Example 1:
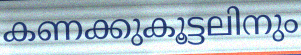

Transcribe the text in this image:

കണക്കുകൂട്ടലിനും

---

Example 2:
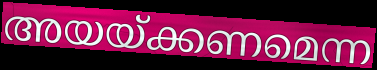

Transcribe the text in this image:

അയയ്ക്കണമെന്ന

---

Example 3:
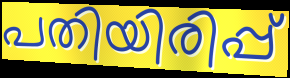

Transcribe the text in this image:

പതിയിരിപ്പ്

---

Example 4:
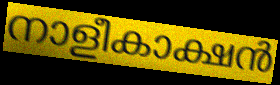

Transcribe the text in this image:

നാളീകാക്ഷൻ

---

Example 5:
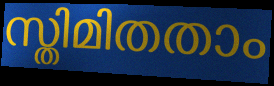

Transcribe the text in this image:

സ്തിമിതതാം